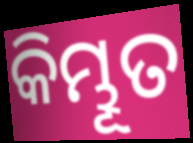
କିମ୍ଭୂତ